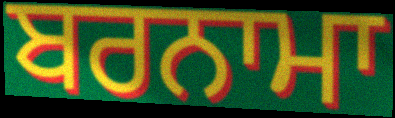
ਬਰਨਾਮਾ